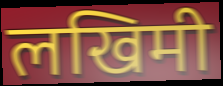
लखिमी